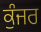
ਕੁੰਜਰ